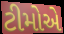
ટીમોએ